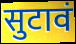
सुटावं